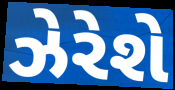
ઝેરેશે